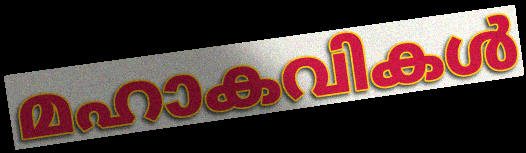
മഹാകവികൾ